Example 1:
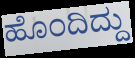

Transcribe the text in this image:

ಹೊಂದಿದ್ದು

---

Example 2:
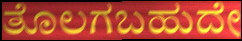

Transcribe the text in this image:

ತೊಲಗಬಹುದೇ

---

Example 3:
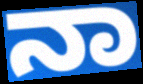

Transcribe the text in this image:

ನಾ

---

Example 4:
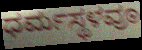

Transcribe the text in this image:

ಧರ್ಮಸ್ಥಳವೂ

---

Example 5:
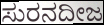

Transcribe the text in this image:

ಸುರನದೀಜ